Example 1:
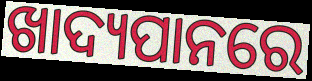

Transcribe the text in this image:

ଖାଦ୍ୟପାନରେ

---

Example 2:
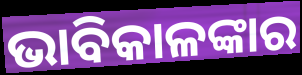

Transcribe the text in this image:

ଭାବିକାଳଙ୍କାର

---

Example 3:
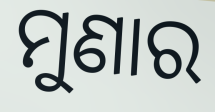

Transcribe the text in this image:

ମୁଣାର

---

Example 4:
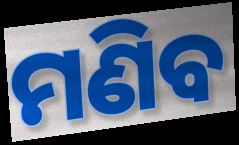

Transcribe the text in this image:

ମଣିବ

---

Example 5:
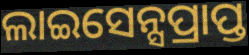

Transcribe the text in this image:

ଲାଇସେନ୍ସପ୍ରାପ୍ତ